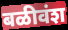
बळीवंश